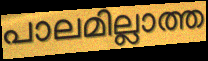
പാലമില്ലാത്ത